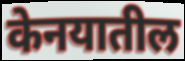
केनयातील